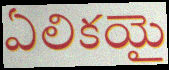
ఏలికయై